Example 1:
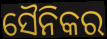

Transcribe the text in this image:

ସୈନିକର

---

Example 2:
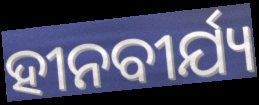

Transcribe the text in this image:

ହୀନବୀର୍ଯ୍ୟ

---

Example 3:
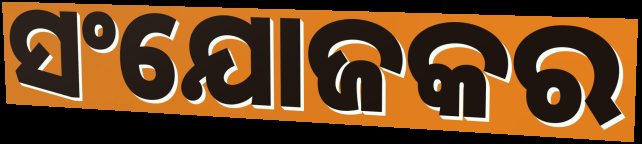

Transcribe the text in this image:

ସଂଯୋଜକର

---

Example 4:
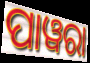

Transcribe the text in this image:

ପାୱରା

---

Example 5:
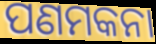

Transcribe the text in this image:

ପଣମକନା